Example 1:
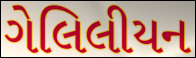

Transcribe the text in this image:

ગેલિલીયન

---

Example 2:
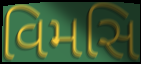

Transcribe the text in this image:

વિમસિ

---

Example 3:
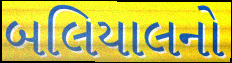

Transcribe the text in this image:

બલિયાલનો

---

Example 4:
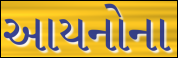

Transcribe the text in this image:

આયનોના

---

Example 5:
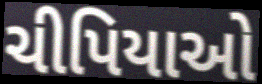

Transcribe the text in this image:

ચીપિયાઓ